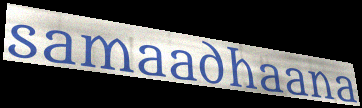
samaadhaana